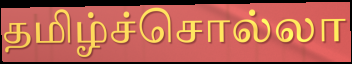
தமிழ்ச்சொல்லா